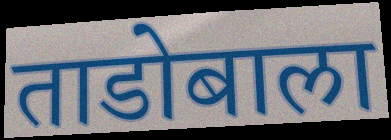
ताडोबाला